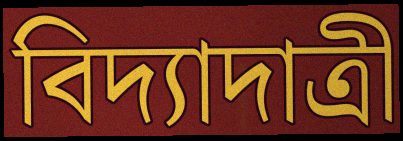
বিদ্যাদাত্রী